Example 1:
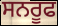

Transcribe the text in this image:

ਸਨਰੂਫ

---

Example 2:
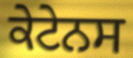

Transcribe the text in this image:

ਕੇਟੇਨਸ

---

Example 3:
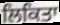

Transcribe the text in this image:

ਲਿਕਿਤਾ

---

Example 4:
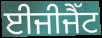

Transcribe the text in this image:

ਈਜੀਜੈੱਟ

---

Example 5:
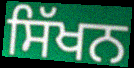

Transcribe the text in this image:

ਸਿੱਖਨ